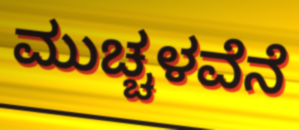
ಮುಚ್ಚಳವೆನೆ